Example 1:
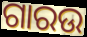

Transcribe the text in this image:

ଗାରଉ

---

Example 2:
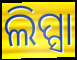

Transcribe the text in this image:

ଲିପ୍ସା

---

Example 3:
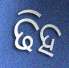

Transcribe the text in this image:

ଢିହ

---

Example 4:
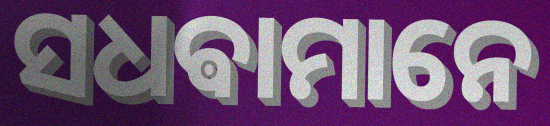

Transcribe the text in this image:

ସଧଵାମାନେ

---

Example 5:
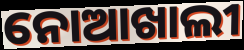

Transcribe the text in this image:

ନୋଆଖାଲୀ